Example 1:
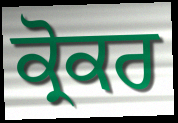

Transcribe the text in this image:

ਕ੍ਰੋਕਰ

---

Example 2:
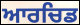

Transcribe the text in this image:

ਆਰਚਿਡ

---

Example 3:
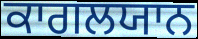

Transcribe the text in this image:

ਕਾਗਲਯਾਨ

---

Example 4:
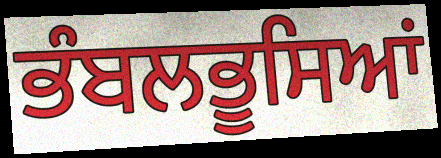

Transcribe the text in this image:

ਭੰਬਲਭੂਸਿਆਂ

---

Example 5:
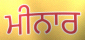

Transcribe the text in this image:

ਮੀਨਾਰ